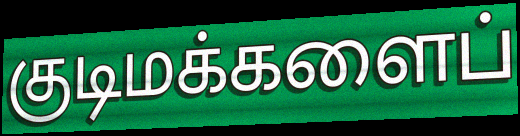
குடிமக்களைப்